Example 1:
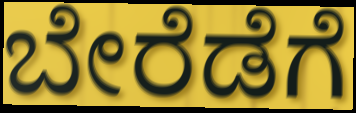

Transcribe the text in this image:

ಬೇರೆಡೆಗೆ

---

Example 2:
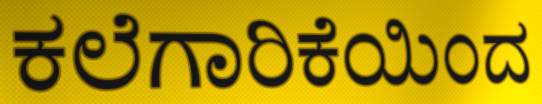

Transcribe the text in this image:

ಕಲೆಗಾರಿಕೆಯಿಂದ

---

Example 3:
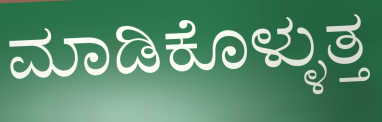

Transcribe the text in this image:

ಮಾಡಿಕೊಳ್ಳುತ್ತ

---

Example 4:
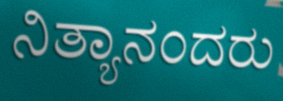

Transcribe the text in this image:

ನಿತ್ಯಾನಂದರು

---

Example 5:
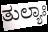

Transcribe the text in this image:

ತುಲ್ಯಾಃ